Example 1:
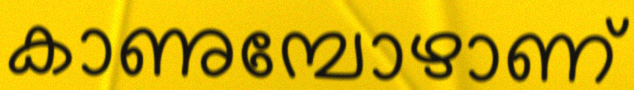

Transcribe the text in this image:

കാണുമ്പോഴാണ്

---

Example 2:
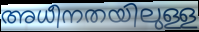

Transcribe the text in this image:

അധീനതയിലുള്ള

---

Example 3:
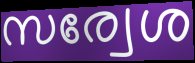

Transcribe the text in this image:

സര്വേശ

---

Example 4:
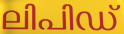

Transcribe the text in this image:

ലിപിഡ്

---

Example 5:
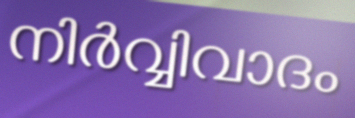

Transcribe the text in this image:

നിർവ്വിവാദം